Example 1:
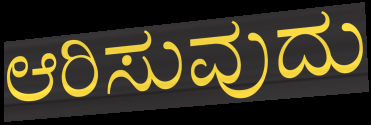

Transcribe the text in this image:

ಆರಿಸುವುದು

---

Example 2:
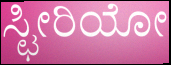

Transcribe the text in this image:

ಸ್ಟೀರಿಯೋ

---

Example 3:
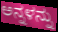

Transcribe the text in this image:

ಅನ್ನಳನ್ನು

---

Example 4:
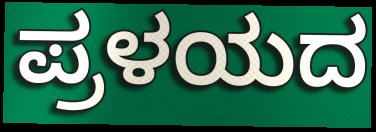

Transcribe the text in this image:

ಪ್ರಳಯದ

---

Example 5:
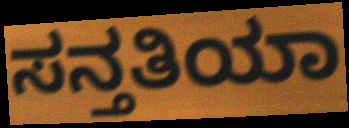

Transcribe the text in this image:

ಸನ್ತತಿಯಾ